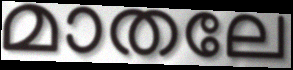
മാതലേ